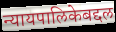
न्यायपालिकेबद्दल